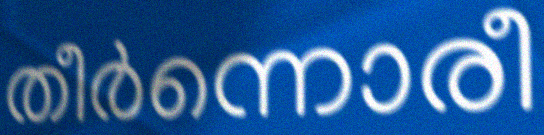
തീർന്നൊരീ